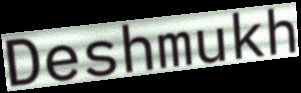
Deshmukh